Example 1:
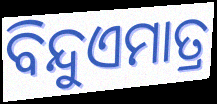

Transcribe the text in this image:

ବିନ୍ଦୁଏମାତ୍ର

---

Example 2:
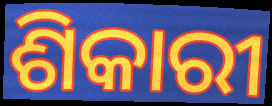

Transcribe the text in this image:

ଶିକାରୀ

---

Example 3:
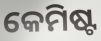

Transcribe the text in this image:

କେମିଷ୍ଟ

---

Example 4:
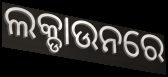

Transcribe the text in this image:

ଲକ୍ଡାଉନରେ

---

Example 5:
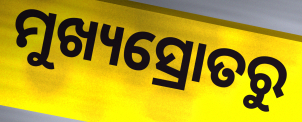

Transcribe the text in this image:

ମୁଖ୍ୟସ୍ରୋତରୁ